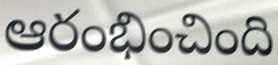
ఆరంభించింది